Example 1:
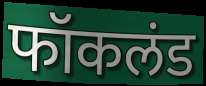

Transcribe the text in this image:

फॉकलंड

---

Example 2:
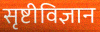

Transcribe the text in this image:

सृष्टीविज्ञान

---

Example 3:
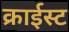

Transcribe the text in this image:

क्राईस्ट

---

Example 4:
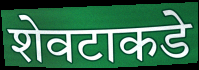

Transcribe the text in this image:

शेवटाकडे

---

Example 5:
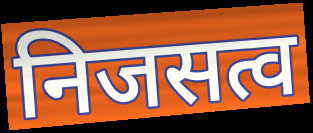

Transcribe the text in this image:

निजसत्व